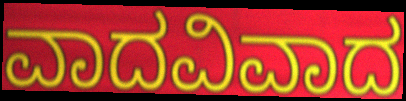
ವಾದವಿವಾದ